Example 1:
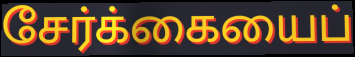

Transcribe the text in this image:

சேர்க்கையைப்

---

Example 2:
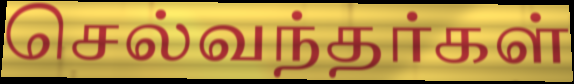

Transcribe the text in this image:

செல்வந்தர்கள்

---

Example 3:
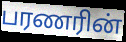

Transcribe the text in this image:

பரணரின்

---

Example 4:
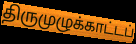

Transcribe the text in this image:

திருமுழுக்காட்டப்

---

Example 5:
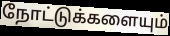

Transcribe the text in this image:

நோட்டுக்களையும்